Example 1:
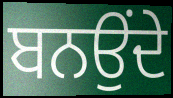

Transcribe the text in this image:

ਬਨਉਂਦੇ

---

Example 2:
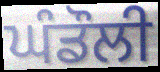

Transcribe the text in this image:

ਘੰਡੌਲੀ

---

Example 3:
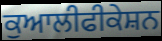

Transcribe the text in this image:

ਕੁਆਲੀਫੀਕੇਸ਼ਨ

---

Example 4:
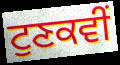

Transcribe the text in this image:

ਟੁਣਕਵੀਂ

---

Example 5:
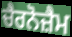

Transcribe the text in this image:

ਚੈਰਨੋਜ਼ੈਮ